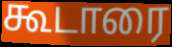
கூடாரை